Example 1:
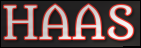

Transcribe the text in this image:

HAAS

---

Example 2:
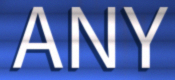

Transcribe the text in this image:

ANY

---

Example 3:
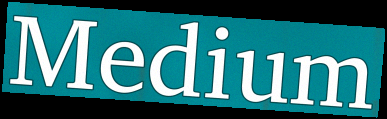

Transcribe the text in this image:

Medium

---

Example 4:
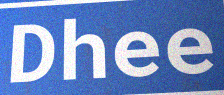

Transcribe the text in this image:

Dhee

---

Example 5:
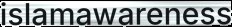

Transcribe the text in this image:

islamawareness